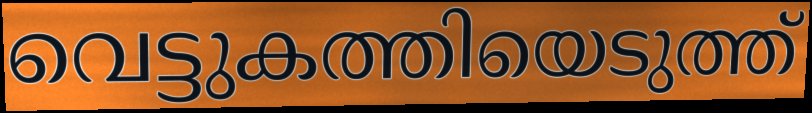
വെട്ടുകത്തിയെടുത്ത്